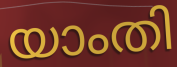
യാംതി